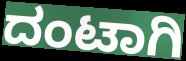
ದಂಟಾಗಿ